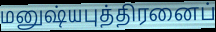
மனுஷ்யபுத்திரனைப்